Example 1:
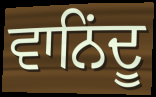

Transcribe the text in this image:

ਵਾਨਿਂਦੂ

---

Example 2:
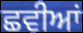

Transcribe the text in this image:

ਛਵੀਆਂ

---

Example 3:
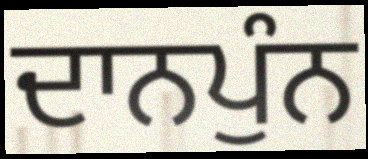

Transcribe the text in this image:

ਦਾਨਪੁੰਨ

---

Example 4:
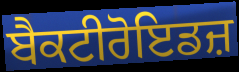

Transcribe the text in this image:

ਬੈਕਟੀਰੋਇਡਜ਼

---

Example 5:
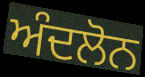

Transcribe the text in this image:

ਅੰਦਲੋਨ